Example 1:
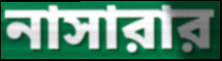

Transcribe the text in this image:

নাসারার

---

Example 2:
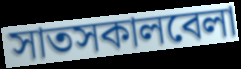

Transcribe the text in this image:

সাতসকালবেলা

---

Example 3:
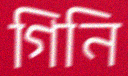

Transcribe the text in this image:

গিনি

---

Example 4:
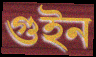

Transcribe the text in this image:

গুইন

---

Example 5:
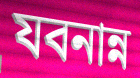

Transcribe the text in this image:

যবনান্ন